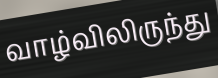
வாழ்விலிருந்து